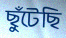
ছুঁটেছি